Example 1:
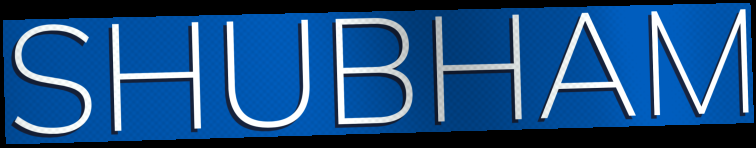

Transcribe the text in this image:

SHUBHAM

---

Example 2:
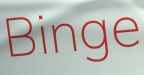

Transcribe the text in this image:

Binge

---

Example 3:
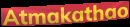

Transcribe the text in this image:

Atmakathao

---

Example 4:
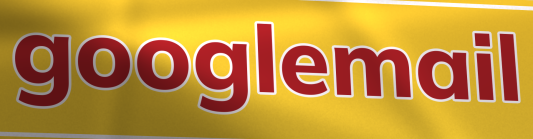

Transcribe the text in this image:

googlemail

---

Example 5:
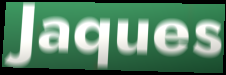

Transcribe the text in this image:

Jaques